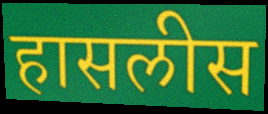
हासलीस